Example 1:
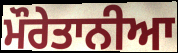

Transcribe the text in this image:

ਮੌਰੇਤਾਨੀਆ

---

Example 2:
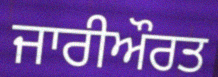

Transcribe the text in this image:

ਜਾਰੀਔਰਤ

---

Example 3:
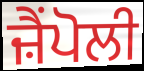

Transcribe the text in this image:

ਜ਼ੈਂਪੋਲੀ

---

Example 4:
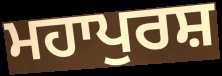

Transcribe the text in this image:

ਮਹਾਪੁਰਸ਼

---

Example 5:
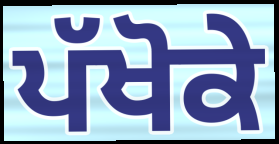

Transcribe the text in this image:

ਪੱਖੋਕੇ